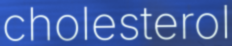
cholesterol